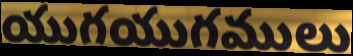
యుగయుగములు